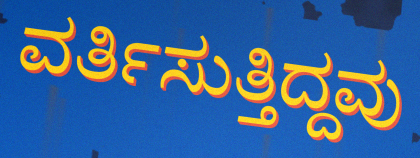
ವರ್ತಿಸುತ್ತಿದ್ದವು